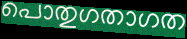
പൊതുഗതാഗത